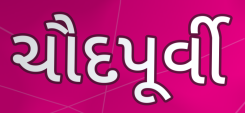
ચૌદપૂર્વી